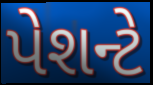
પેશન્ટે